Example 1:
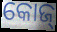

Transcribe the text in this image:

କୋଜ୍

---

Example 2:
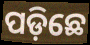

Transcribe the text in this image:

ପଡ଼ିଛେ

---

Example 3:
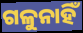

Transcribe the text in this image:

ଗଳୁନାହିଁ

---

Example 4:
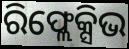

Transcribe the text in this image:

ରିଫ୍ଲେକ୍ସିଭ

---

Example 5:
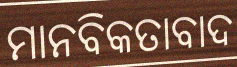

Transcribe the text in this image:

ମାନବିକତାବାଦ